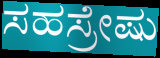
ಸಹಸ್ರೇಷು